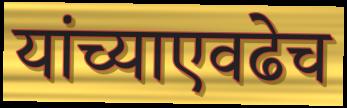
यांच्याएवढेच